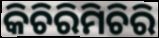
କିଚିରିମିଚିରି